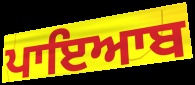
ਪਾਇਆਬ